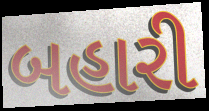
બહારી